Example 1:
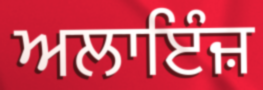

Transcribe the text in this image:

ਅਲਾਇੰਜ਼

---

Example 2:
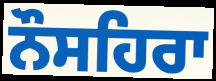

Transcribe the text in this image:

ਨੌਸਹਿਰਾ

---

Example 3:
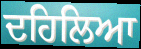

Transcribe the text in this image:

ਦਹਿਲਿਆ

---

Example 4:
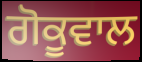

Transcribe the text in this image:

ਗੋਕੂਵਾਲ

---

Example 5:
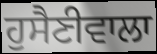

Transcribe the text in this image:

ਹੁਸੈਣੀਵਾਲਾ